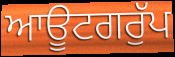
ਆਊਟਗਰੁੱਪ